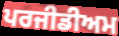
ਪਰਜੀਡੀਅਮ